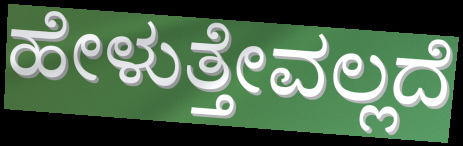
ಹೇಳುತ್ತೇವಲ್ಲದೆ